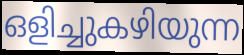
ഒളിച്ചുകഴിയുന്ന